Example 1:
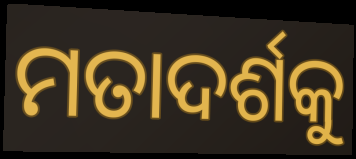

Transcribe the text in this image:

ମତାଦର୍ଶକୁ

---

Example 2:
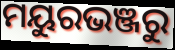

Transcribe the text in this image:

ମୟୁରଭଞ୍ଜରୁ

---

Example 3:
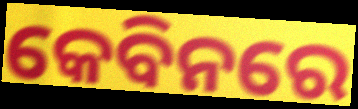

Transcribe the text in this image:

କେବିନରେ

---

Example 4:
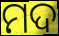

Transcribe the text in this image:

ମଦ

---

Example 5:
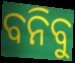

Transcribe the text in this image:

ବନିବୁ